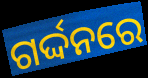
ଗର୍ଦ୍ଦନରେ